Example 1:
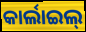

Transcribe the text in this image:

କାର୍ଲାଇଲ୍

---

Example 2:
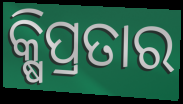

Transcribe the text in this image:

କ୍ଷିପ୍ରତାର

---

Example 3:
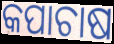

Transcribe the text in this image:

କପାଚାଷ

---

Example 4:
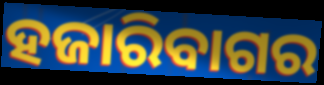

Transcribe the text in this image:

ହଜାରିବାଗର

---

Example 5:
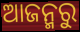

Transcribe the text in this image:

ଆଜନ୍ମରୁ